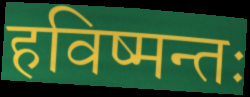
हविष्मन्तः